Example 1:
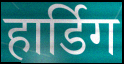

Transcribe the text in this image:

हार्डिग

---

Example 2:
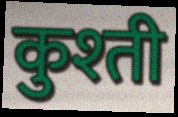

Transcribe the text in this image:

कुश्‍ती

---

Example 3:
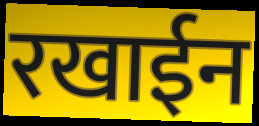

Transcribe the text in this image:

रखाईन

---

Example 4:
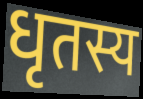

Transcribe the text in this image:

धृतस्य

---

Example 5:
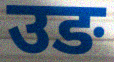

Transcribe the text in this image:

उङ